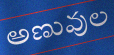
అణువుల